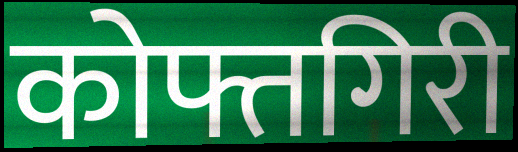
कोफ्तगिरी